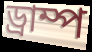
ড্রাম্প